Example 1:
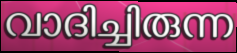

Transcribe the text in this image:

വാദിച്ചിരുന്ന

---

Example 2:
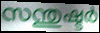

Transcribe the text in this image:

സന്തുഷ്ടർ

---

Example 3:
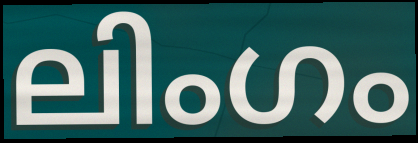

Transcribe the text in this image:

ലിംഗം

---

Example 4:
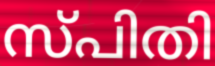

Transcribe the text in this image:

സ്പിതി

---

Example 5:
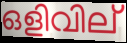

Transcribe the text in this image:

ഒളിവില്